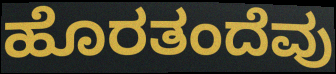
ಹೊರತಂದೆವು